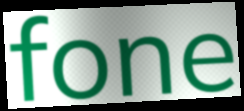
fone